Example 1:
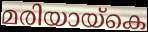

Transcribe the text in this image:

മരിയായ്കെ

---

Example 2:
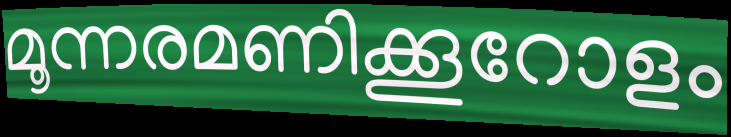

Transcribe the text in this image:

മൂന്നരമണിക്കൂറോളം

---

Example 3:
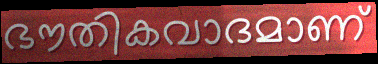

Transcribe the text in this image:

ഭൗതികവാദമാണ്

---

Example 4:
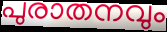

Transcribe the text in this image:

പുരാതനവും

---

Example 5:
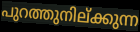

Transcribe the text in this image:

പുറത്തുനില്ക്കുന്ന